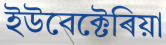
ইউবেক্টেৰিয়া